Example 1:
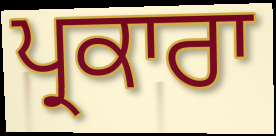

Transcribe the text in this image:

ਪ੍ਰਕਾਰਾ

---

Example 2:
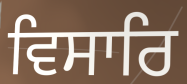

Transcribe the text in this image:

ਵਿਸਾਰਿ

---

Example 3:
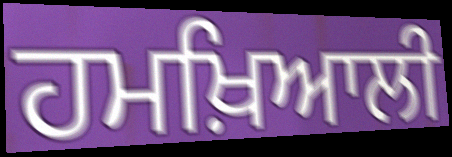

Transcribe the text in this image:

ਹਮਖ਼ਿਆਲੀ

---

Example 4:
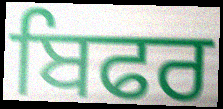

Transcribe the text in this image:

ਬਿਫਰ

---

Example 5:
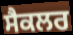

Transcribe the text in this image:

ਸੈਕਲਰ